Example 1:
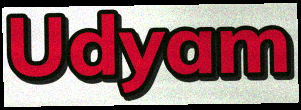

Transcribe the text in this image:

Udyam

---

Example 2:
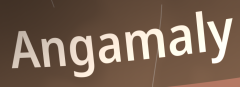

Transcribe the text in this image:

Angamaly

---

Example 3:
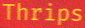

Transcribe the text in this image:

Thrips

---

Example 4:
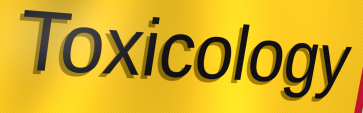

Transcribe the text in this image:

Toxicology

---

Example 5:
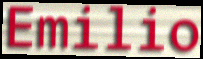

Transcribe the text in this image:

Emilio